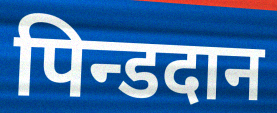
पिन्डदान